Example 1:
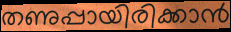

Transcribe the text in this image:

തണുപ്പായിരിക്കാൻ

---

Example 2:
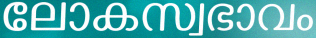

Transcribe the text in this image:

ലോകസ്വഭാവം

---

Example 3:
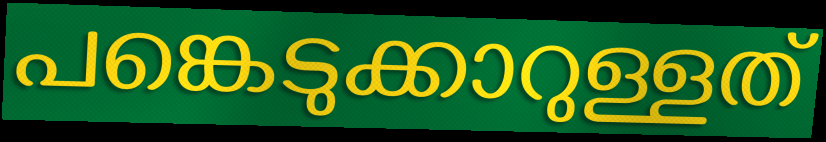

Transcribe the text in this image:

പങ്കെടുക്കാറുള്ളത്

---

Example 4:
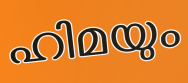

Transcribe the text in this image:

ഹിമയും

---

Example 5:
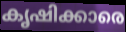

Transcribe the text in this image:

കൃഷിക്കാരെ